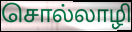
சொல்லாழி